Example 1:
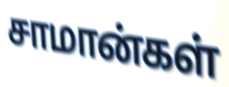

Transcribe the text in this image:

சாமான்கள்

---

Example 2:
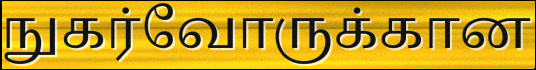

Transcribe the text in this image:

நுகர்வோருக்கான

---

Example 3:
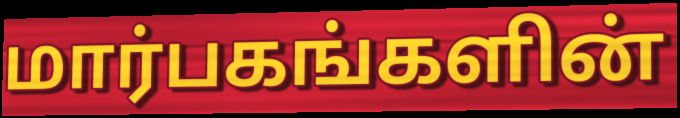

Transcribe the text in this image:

மார்பகங்களின்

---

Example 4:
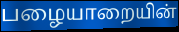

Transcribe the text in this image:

பழையாறையின்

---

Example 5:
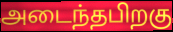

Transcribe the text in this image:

அடைந்தபிறகு